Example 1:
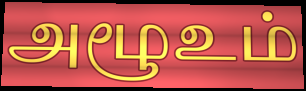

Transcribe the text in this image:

அழூஉம்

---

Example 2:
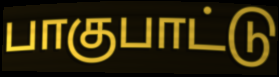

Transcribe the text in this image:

பாகுபாட்டு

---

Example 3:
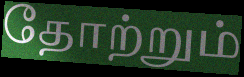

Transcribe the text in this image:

தோற்றும்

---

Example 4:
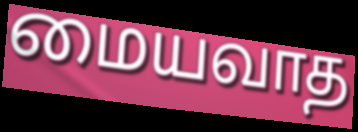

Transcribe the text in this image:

மையவாத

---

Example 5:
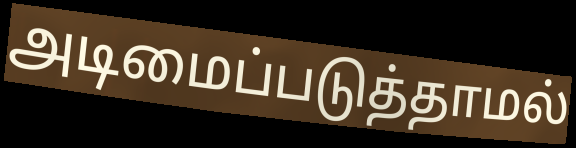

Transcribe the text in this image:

அடிமைப்படுத்தாமல்